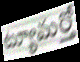
ట్యూమర్తో